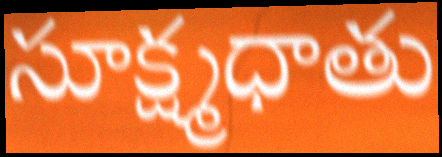
సూక్ష్మధాతు